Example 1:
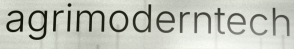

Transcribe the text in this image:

agrimoderntech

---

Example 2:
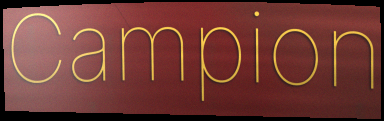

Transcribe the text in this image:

Campion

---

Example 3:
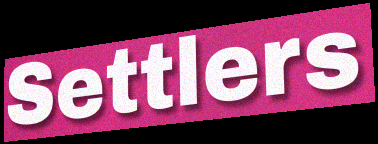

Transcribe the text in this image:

Settlers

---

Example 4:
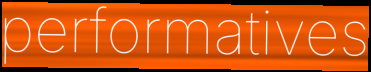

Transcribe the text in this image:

performatives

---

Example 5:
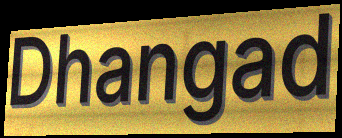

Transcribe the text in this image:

Dhangad